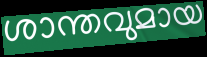
ശാന്തവുമായ